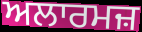
ਅਲਾਰਮਜ਼